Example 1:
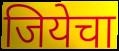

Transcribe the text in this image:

जियेचा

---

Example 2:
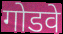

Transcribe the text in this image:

गोडवे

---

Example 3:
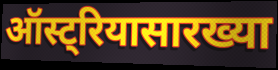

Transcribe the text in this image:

ऑस्ट्रियासारख्या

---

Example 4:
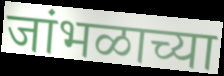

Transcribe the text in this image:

जांभळाच्या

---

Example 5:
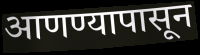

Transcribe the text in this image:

आणण्यापासून